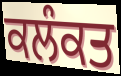
ਕਲੰਕਤ